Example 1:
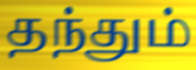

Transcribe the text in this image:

தந்தும்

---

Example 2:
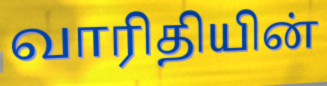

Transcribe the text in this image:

வாரிதியின்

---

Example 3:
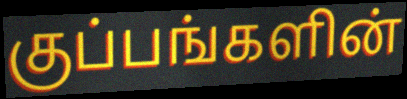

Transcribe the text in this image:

குப்பங்களின்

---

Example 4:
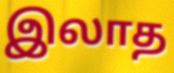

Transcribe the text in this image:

இலாத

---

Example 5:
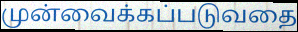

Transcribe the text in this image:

முன்வைக்கப்படுவதை